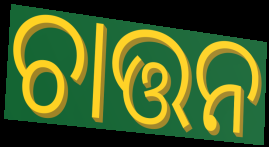
ଚାତ୍ତନ